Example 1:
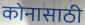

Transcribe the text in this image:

कोनासाठी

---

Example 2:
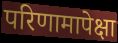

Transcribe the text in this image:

परिणामापेक्षा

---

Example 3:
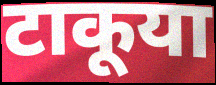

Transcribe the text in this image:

टाकूया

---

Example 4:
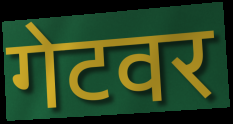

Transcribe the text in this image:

गेटवर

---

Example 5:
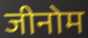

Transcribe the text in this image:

जीनोम